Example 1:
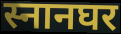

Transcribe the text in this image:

स्नानघर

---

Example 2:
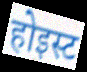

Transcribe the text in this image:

होइस्ट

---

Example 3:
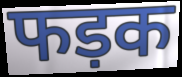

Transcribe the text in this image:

फड़क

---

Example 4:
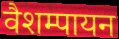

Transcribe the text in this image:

वैशम्पायन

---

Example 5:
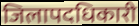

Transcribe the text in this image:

जिलापदधिकारी